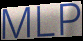
MLP